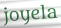
joyela